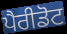
ਪੈਰੀਡੋਟ